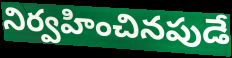
నిర్వహించినపుడే